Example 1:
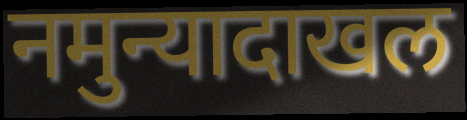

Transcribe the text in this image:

नमुन्यादाखल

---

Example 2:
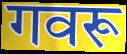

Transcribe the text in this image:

गवरू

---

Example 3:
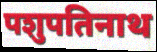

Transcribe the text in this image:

पशुपतिनाथ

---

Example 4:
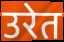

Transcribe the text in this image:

उरेत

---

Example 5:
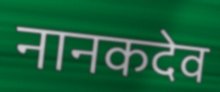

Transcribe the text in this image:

नानकदेव